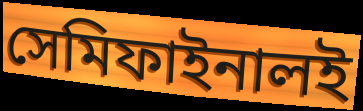
সেমিফাইনালই